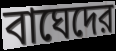
বাঘেদের